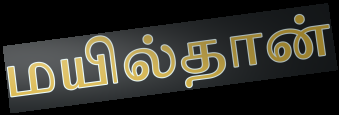
மயில்தான்